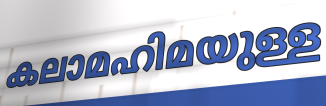
കലാമഹിമയുള്ള